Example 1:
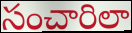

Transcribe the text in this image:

సంచారిలా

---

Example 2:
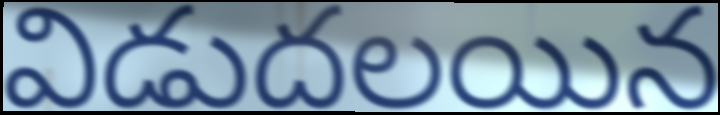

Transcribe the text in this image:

విడుదలయిన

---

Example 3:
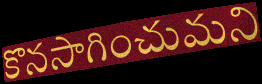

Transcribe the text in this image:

కొనసాగించుమని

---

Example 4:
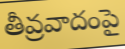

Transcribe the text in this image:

తీవ్రవాదంపై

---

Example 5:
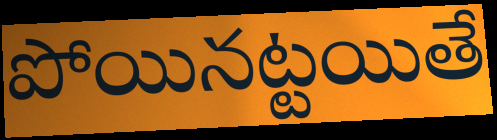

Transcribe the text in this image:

పోయినట్టయితే